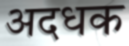
अदधक